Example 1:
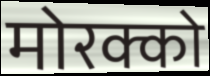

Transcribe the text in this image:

मोरक्को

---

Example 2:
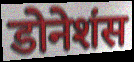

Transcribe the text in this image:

डोनेशंस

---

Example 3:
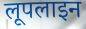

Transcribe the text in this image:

लूपलाइन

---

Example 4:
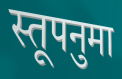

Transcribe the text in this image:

स्तूपनुमा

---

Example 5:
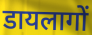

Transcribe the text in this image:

डायलागों